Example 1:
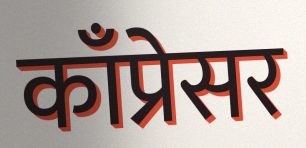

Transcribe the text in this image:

काँप्रेसर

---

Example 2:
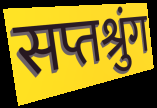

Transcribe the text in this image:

सप्तश्रुंग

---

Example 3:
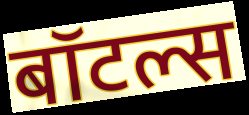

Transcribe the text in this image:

बॉटल्स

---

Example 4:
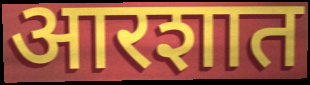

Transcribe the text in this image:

आरशात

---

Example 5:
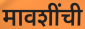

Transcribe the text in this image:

मावशींची